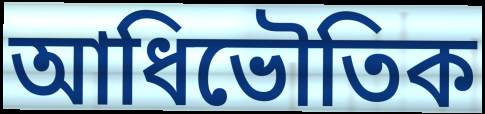
আধিভৌতিক